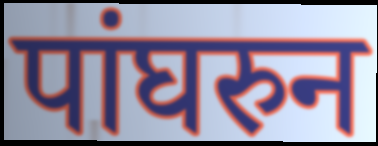
पांघरुन